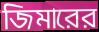
জিমারের